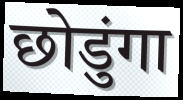
छोडुंगा